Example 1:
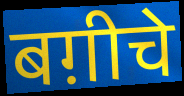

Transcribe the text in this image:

बग़ीचे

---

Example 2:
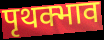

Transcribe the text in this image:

पृथक्भाव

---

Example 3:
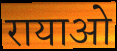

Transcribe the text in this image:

रायाओ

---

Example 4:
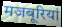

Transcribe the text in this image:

मजबूरियां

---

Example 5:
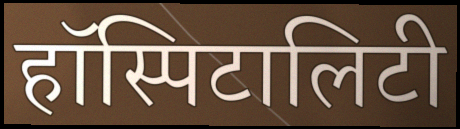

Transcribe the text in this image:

हॉस्पिटालिटी